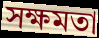
সক্ষমতা